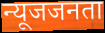
न्यूजजनता